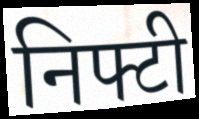
निफ्टी